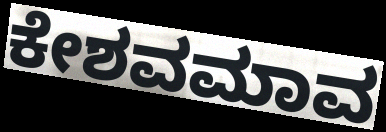
ಕೇಶವಮಾವ